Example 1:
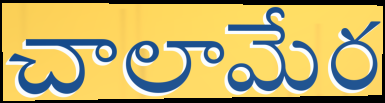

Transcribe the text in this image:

చాలామేర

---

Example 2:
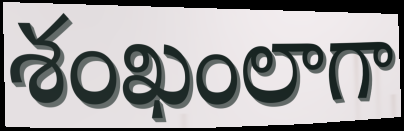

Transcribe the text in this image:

శంఖంలాగా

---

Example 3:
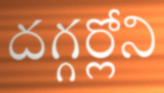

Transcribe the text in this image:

దగ్గర్లోని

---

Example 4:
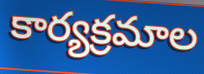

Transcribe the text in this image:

కార్యక్రమాల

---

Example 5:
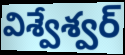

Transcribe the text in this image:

విశ్వేశ్వర్